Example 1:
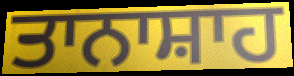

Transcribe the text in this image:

ਤਾਨਾਸ਼ਾਹ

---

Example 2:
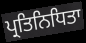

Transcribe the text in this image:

ਪ੍ਰਤਿਨਿਧਿਤਾ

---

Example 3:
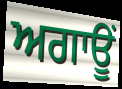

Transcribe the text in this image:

ਅਗਾਊਂ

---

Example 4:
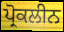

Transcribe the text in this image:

ਪ੍ਰੋਕਲੀਨ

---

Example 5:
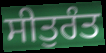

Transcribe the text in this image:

ਸੀਤੁਰੰਤ